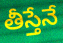
తీస్తేనే